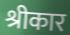
श्रीकार